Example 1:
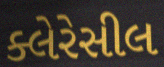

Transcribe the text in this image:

ક્લેરેસીલ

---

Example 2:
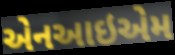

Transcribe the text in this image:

એનઆઇએમ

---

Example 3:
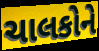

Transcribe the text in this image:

ચાલકોને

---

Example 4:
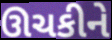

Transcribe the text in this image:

ઊચકીને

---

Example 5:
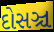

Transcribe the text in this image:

દોસઞ્ચ